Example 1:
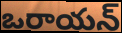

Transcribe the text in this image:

ఒరాయన్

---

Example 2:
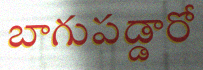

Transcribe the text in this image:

బాగుపడ్డారో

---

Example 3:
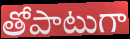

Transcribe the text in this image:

తోపాటుగా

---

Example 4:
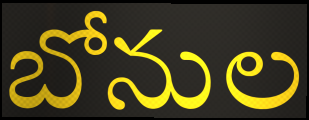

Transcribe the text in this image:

బోనుల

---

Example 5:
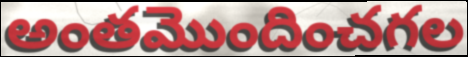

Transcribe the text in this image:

అంతమొందించగల